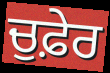
ਚੁਫ਼ੇਰ